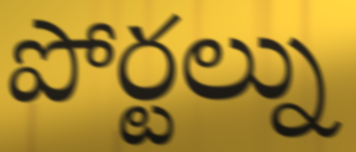
పోర్టల్ను